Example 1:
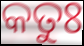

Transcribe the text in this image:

କତୁଃ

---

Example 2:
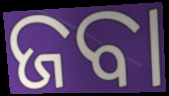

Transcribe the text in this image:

ଜବା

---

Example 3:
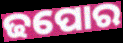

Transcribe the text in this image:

ଢପୋର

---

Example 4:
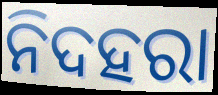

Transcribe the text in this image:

ନିଦହରା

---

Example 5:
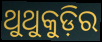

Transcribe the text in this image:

ଥୁଥୁକୁଡ଼ିର